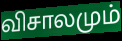
விசாலமும்